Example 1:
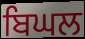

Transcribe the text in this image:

ਬਿਘਲ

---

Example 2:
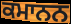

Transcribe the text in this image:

ਕਮਾਨਨ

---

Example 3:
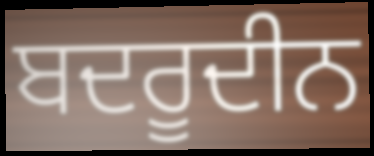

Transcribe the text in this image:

ਬਦਰੂਦੀਨ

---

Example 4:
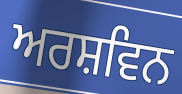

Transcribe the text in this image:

ਅਰਸ਼ਵਿਨ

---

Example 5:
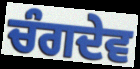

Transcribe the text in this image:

ਚੰਗਦੇਵ